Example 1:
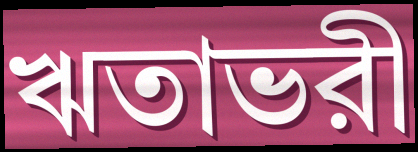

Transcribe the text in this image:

ঋতাভরী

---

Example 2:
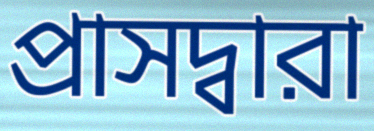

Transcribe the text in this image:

প্রাসদ্বারা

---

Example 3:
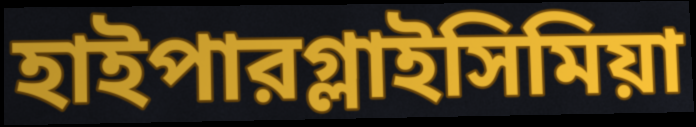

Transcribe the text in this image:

হাইপারগ্লাইসিমিয়া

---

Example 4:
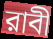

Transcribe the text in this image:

রাবী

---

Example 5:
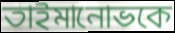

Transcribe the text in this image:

তাইমানোভকে